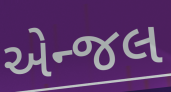
એન્જલ